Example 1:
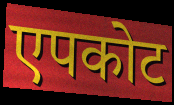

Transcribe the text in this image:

एपकोट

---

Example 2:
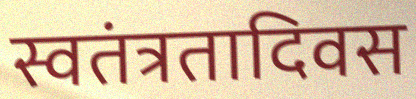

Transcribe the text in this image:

स्वतंत्रतादिवस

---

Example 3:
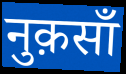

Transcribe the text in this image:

नुक़साँ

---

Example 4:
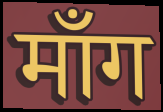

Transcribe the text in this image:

माँग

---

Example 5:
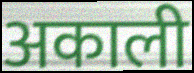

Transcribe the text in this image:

अकाली